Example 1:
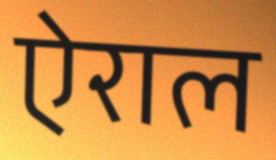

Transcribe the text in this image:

ऐराल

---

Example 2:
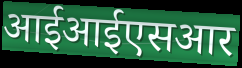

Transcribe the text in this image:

आईआईएसआर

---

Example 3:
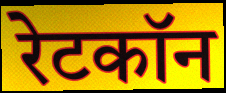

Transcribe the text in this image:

रेटकॉन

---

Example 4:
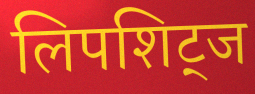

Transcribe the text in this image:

लिपशिट्ज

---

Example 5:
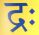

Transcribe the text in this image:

द्रः